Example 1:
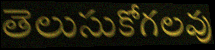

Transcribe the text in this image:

తెలుసుకోగలవు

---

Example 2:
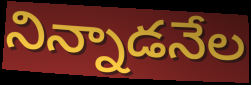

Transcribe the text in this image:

నిన్నాడనేల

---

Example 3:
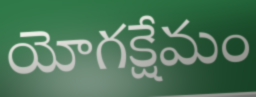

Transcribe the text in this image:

యోగక్షేమం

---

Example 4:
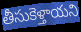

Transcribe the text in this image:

తీసుకెళ్తాయని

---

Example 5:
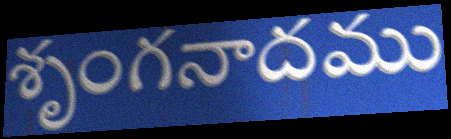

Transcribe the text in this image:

శృంగనాదము